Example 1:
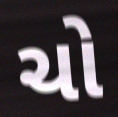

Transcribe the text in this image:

ચો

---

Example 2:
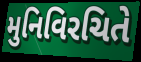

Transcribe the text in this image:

મુનિવિરચિતે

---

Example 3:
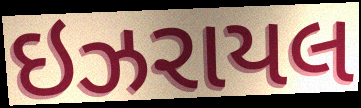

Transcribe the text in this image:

ઇઝરાયલ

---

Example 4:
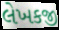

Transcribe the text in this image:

લેખકજી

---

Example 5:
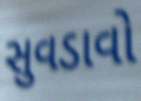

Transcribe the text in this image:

સુવડાવો